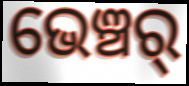
ଭେଞ୍ଚର୍